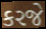
કરજે